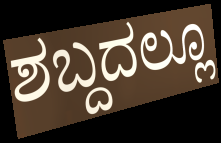
ಶಬ್ದದಲ್ಲೂ